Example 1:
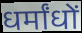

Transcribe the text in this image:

धर्मांधों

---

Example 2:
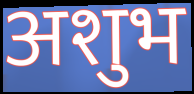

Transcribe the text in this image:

अशुभ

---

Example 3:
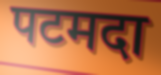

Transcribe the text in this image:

पटमदा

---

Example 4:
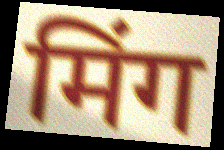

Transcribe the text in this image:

मिंग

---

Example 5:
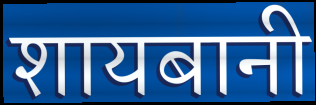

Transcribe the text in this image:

शायबानी